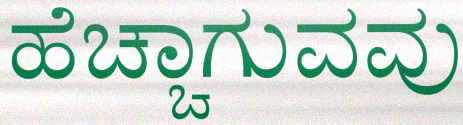
ಹೆಚ್ಚಾಗುವವು